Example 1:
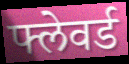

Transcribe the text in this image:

फ्लेवर्ड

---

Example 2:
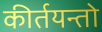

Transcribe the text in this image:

कीर्तयन्तो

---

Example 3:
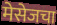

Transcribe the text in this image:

मेसेजचा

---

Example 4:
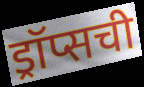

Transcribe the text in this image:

ड्रॉप्सची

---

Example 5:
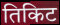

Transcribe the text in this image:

तिकिट